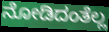
ನೋಡಿದಂತೆಲ್ಲ